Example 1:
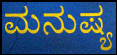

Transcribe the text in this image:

ಮನುಷ್ಯ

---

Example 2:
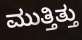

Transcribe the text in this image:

ಮುತ್ತಿತ್ತು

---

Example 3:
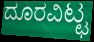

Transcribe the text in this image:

ದೂರವಿಟ್ಟ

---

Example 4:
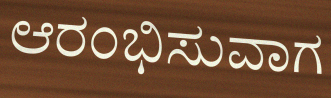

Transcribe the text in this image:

ಆರಂಭಿಸುವಾಗ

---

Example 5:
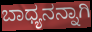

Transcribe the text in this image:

ಬಾಧ್ಯನನ್ನಾಗಿ